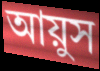
আয়ুস